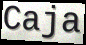
Caja